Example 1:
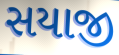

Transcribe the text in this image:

સયાજી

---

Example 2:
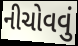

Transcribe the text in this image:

નીચોવવું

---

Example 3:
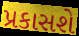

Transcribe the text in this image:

પ્રકાસશે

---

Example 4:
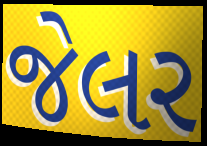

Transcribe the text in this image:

જેલર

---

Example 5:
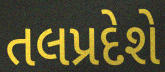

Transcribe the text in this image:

તલપ્રદેશે